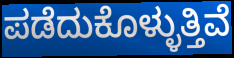
ಪಡೆದುಕೊಳ್ಳುತ್ತಿವೆ